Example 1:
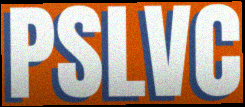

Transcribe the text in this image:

PSLVC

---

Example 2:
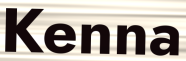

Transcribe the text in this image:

Kenna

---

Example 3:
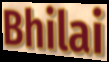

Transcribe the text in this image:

Bhilai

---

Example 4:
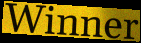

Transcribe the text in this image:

Winner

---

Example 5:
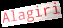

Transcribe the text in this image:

Alagiri